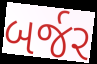
બર્જર